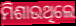
ମିଶାଉଥିଲେ